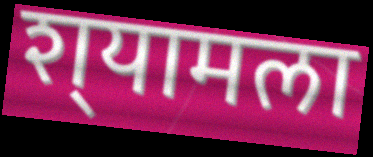
श्यामला